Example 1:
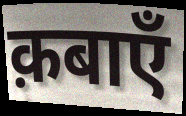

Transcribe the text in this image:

क़बाएँ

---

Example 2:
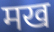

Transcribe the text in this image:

मख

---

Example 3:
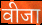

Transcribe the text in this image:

वीजा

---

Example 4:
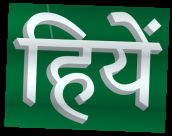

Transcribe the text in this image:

हियें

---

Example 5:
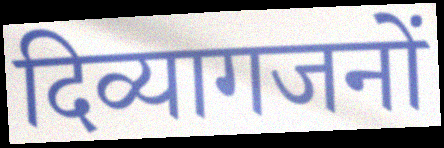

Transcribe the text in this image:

दिव्यागजनों